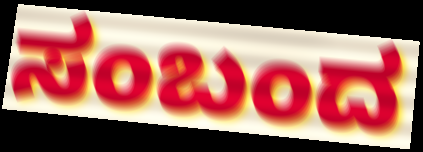
ಸಂಬಂದ